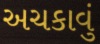
અચકાવું